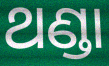
ଥଣ୍ଡା